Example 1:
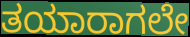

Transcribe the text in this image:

ತಯಾರಾಗಲೇ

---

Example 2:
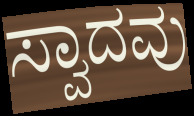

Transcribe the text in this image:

ಸ್ವಾದವು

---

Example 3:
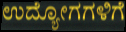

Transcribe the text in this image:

ಉದ್ಯೋಗಗಳಿಗೆ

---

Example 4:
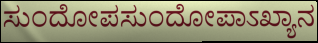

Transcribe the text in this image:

ಸುಂದೋಪಸುಂದೋಪಾಽಖ್ಯಾನ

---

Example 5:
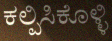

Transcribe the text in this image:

ಕಲ್ಪಿಸಿಕೊಳ್ಳಿ